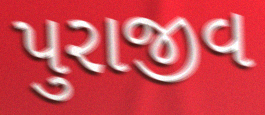
પુરાજીવ